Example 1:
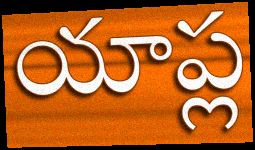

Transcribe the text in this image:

యాప్ల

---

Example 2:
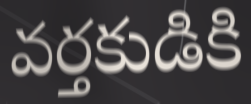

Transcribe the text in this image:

వర్తకుడికి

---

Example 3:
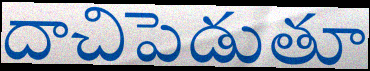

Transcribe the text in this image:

దాచిపెడుతూ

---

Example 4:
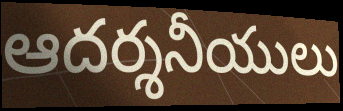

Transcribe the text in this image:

ఆదర్శనీయులు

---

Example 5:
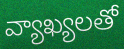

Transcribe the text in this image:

వ్యాఖ్యలతో